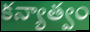
కన్యాత్వం